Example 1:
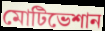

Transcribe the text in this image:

মোটিভেশান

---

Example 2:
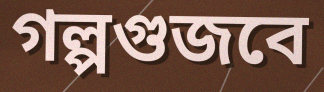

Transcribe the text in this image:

গল্পগুজবে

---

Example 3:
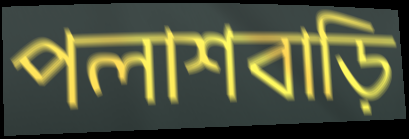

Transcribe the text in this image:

পলাশবাড়ি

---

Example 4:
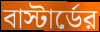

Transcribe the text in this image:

বাস্টার্ডের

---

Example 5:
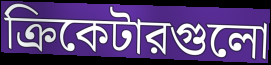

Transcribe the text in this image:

ক্রিকেটারগুলো